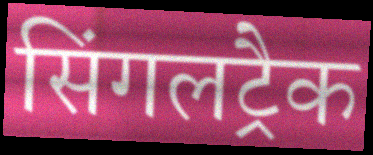
सिंगलट्रैक